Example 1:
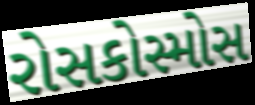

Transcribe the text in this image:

રોસકોસ્મોસ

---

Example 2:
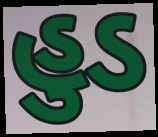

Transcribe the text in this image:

હુડ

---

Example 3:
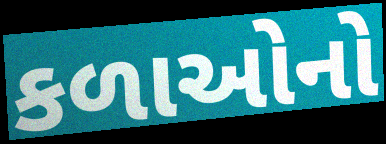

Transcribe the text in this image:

કળાઓનો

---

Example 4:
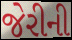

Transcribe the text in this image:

જેરીની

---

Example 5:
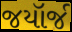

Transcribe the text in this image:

જયૉર્જ